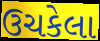
ઉચકેલા